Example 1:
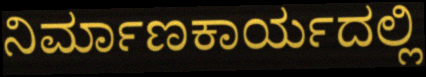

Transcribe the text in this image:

ನಿರ್ಮಾಣಕಾರ್ಯದಲ್ಲಿ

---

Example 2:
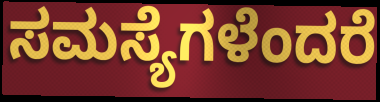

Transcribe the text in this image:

ಸಮಸ್ಯೆಗಳೆಂದರೆ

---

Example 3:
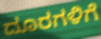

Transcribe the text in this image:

ದೂರಗಳಿಗೆ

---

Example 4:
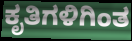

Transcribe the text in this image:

ಕೃತಿಗಳಿಗಿಂತ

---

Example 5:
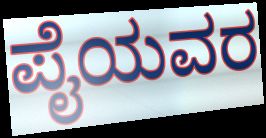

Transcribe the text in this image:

ಪೈಯವರ